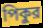
পিকুর